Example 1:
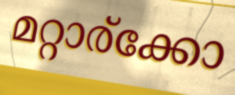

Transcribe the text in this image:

മറ്റാര്ക്കോ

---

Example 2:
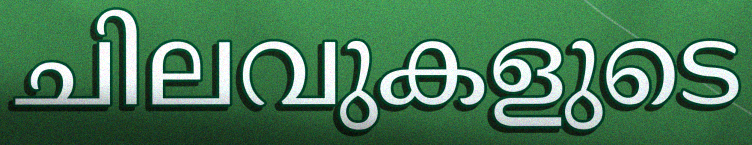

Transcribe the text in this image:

ചിലവുകളുടെ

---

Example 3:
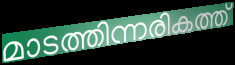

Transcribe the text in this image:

മാടത്തിന്നരികത്ത്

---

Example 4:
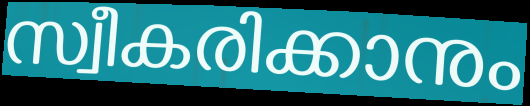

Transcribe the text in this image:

സ്വീകരിക്കാനും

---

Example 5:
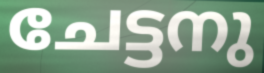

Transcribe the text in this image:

ചേട്ടനു